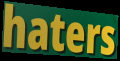
haters